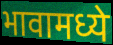
भावामध्ये